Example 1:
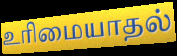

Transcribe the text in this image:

உரிமையாதல்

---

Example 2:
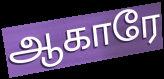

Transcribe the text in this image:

ஆகாரே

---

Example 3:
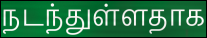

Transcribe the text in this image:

நடந்துள்ளதாக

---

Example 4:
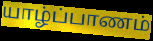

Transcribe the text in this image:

யாழ்ப்பாணம்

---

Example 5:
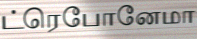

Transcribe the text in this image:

ட்ரெபோனேமா